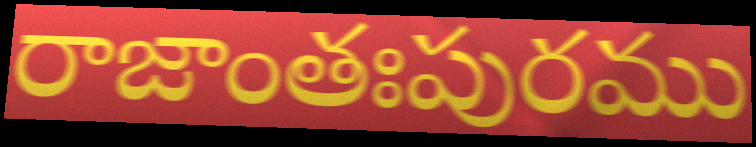
రాజాంతఃపురము